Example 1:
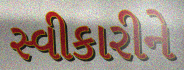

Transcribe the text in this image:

સ્વીકારીને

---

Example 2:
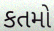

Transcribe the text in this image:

કતમો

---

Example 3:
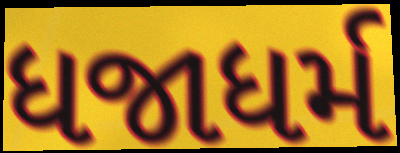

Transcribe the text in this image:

ધજાધર્મ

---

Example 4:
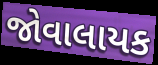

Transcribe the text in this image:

જોવાલાયક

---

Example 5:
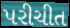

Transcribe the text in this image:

પરીચીત